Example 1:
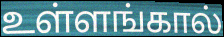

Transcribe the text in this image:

உள்ளங்கால்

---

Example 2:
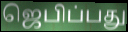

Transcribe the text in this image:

ஜெபிப்பது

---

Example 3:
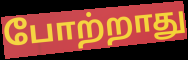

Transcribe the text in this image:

போற்றாது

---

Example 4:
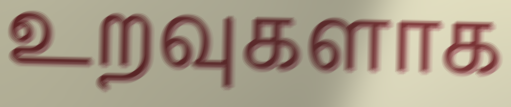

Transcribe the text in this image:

உறவுகளாக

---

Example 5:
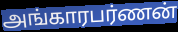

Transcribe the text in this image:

அங்காரபர்ணன்